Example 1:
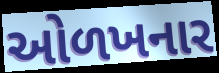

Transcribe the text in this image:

ઓળખનાર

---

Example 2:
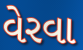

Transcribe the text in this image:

વેરવા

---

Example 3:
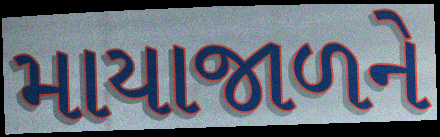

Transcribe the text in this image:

માયાજાળને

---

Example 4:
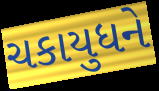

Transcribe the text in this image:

ચકાયુધને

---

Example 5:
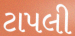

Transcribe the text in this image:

ટાપલી